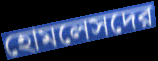
হোমলেসদের